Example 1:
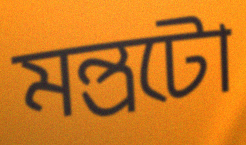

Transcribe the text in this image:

মন্ত্ৰটো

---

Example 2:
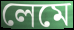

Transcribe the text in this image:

লেমে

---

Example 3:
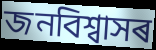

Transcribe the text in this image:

জনবিশ্বাসৰ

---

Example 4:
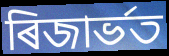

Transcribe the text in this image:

ৰিজাৰ্ভত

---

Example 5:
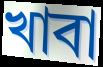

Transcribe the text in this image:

খাবা